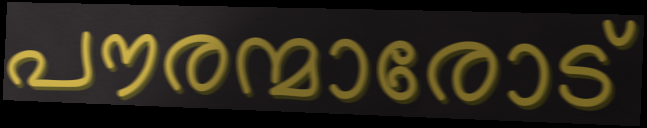
പൗരന്മാരോട്